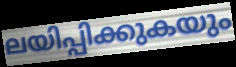
ലയിപ്പിക്കുകയും